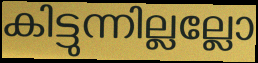
കിട്ടുന്നില്ലല്ലോ